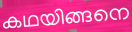
കഥയിങ്ങനെ